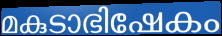
മകുടാഭിഷേകം